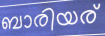
ബാരിയര്